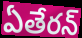
ఏతేరన్